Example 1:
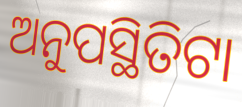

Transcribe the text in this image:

ଅନୁପସ୍ଥିତିଟା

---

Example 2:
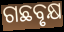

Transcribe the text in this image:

ଗଛବୃକ୍ଷ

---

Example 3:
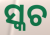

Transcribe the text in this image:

ସ୍କଚ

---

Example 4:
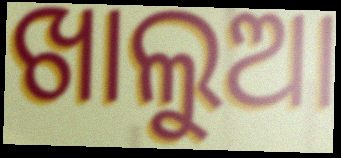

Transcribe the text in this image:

ଖାଲୁଆ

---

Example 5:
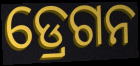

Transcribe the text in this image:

ଡ୍ରେଗନ